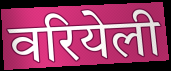
वरियेली